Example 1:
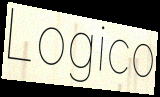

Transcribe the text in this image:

Logico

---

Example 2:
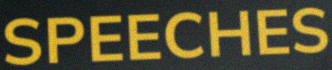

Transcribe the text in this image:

SPEECHES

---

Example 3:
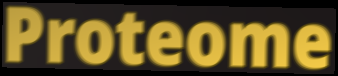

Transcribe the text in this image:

Proteome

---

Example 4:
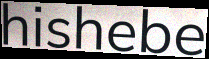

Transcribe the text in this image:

hishebe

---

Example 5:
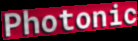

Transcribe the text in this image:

Photonic